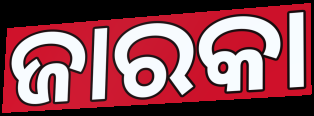
ଜାରକା